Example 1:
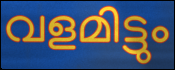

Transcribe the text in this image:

വളമിട്ടും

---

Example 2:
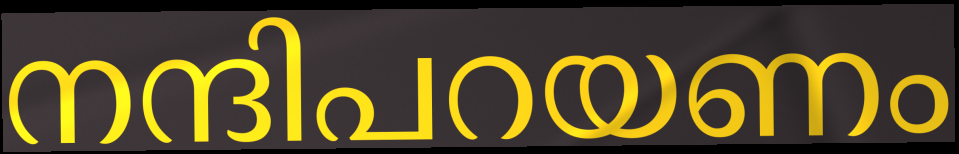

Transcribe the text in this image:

നന്ദിപറയണം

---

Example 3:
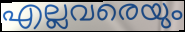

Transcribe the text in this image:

എല്ലവരെയും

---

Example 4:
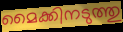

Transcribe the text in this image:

മൈക്കിനടുത്തു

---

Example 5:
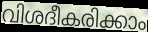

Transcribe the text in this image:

വിശദീകരിക്കാം